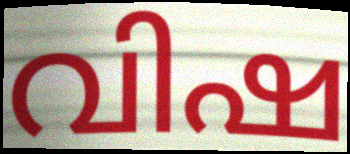
വിഷ